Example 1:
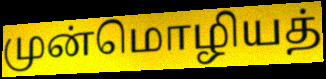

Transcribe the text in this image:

முன்மொழியத்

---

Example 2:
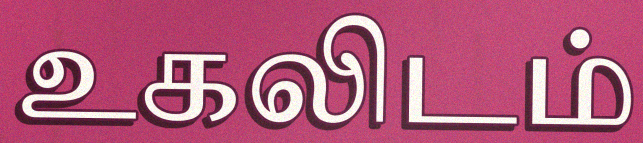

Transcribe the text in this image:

உகலிடம்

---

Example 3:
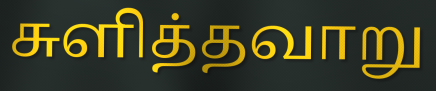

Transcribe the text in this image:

சுளித்தவாறு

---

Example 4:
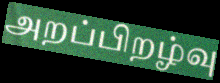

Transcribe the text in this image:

அறப்பிறழ்வு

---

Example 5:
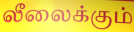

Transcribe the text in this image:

லீலைக்கும்